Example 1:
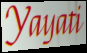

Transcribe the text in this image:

Yayati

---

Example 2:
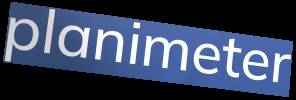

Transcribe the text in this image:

planimeter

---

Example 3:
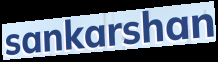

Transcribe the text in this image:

sankarshan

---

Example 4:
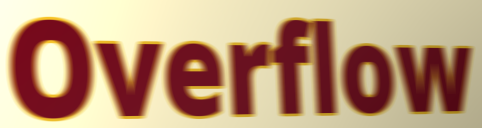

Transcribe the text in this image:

Overflow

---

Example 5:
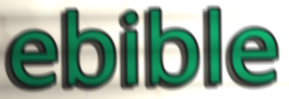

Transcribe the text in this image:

ebible